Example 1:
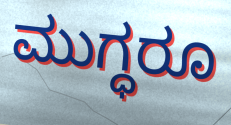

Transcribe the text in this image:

ಮುಗ್ಧರೂ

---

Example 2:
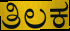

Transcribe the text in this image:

ತಿಲಕ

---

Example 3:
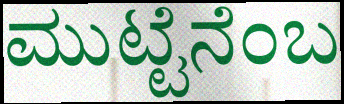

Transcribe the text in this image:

ಮುಟ್ಟೆನೆಂಬ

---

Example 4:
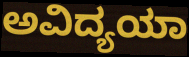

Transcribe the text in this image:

ಅವಿದ್ಯಯಾ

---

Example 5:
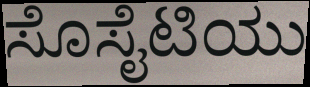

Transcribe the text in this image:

ಸೊಸೈಟಿಯು